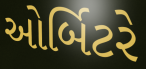
ઓર્બિટરે